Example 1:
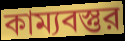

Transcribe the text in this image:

কাম্যবস্তুর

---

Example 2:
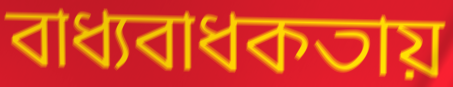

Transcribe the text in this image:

বাধ্যবাধকতায়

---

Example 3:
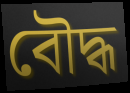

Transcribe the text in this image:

বৌদ্ধ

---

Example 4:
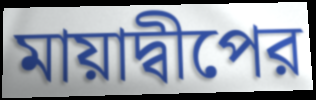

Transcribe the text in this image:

মায়াদ্বীপের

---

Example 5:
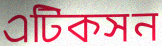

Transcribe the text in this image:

এটিকসন